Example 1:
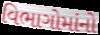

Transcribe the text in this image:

વિભાગોમાંનો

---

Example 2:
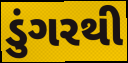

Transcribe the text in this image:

ડુંગરથી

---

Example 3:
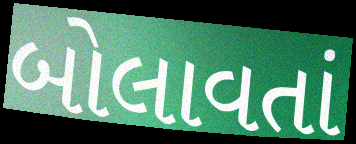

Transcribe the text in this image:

બોલાવતાં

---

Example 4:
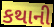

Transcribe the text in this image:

કથાની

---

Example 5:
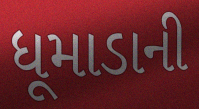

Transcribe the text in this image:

ધૂમાડાની